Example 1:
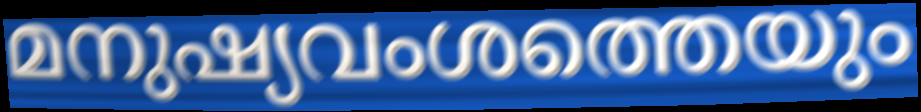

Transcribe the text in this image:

മനുഷ്യവംശത്തെയും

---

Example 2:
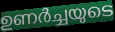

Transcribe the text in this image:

ഉണർച്ചയുടെ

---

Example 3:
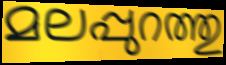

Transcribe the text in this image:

മലപ്പുറത്തു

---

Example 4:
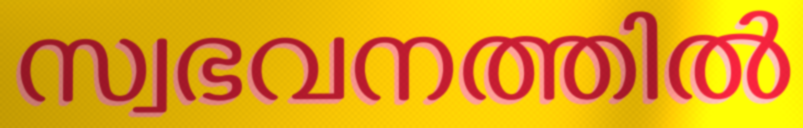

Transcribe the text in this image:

സ്വഭവനത്തിൽ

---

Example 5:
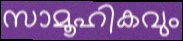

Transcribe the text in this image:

സാമൂഹികവും